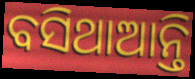
ବସିଥାଆନ୍ତି